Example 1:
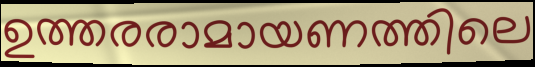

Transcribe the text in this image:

ഉത്തരരാമായണത്തിലെ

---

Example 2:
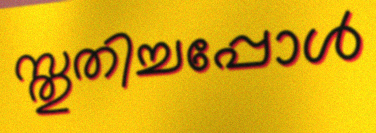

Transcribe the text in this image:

സ്തുതിച്ചപ്പോൾ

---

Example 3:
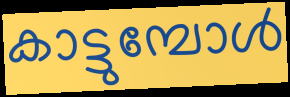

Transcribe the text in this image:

കാട്ടുമ്പോൾ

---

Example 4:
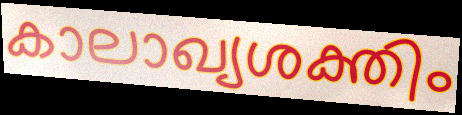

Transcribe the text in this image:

കാലാഖ്യശക്തിം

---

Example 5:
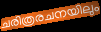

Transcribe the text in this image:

ചരിത്രരചനയിലും